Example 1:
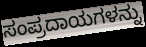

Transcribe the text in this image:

ಸಂಪ್ರದಾಯಗಳನ್ನು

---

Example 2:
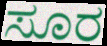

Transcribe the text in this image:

ಸೂರ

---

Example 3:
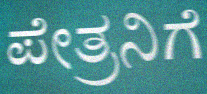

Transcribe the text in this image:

ಪೇತ್ರನಿಗೆ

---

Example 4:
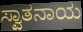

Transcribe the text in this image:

ಸ್ವಾತನಾಯ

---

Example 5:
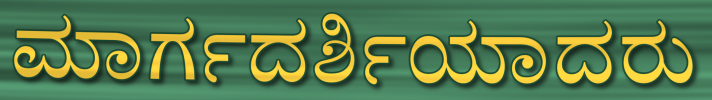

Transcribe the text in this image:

ಮಾರ್ಗದರ್ಶಿಯಾದರು